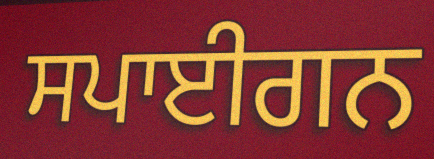
ਸਪਾਈਗਨ